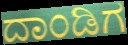
ದಾಂಡಿಗ